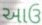
આઉ